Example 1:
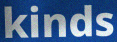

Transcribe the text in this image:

kinds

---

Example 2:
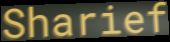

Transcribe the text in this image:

Sharief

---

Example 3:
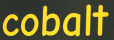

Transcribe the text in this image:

cobalt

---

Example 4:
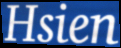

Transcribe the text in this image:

Hsien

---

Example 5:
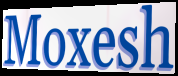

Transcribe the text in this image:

Moxesh